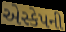
એસ્કેપની